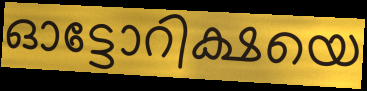
ഓട്ടോറിക്ഷയെ